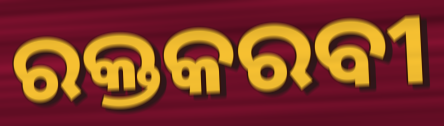
ରକ୍ତକରବୀ